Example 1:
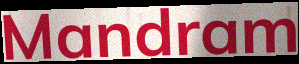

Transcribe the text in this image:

Mandram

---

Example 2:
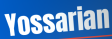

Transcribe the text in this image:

Yossarian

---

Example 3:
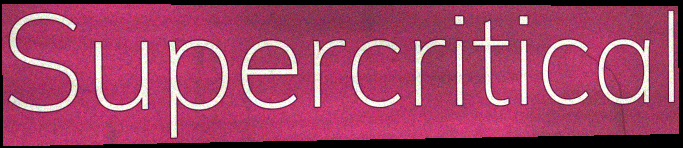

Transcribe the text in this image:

Supercritical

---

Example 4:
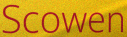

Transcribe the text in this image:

Scowen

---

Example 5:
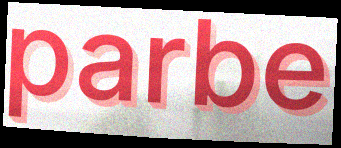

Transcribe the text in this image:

parbe